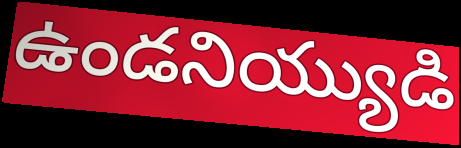
ఉండనియ్యుడి